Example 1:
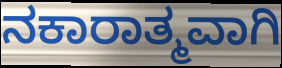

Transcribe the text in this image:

ನಕಾರಾತ್ಮವಾಗಿ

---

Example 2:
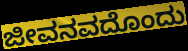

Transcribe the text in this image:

ಜೀವನವದೊಂದು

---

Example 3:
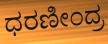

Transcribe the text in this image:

ಧರಣೀಂದ್ರ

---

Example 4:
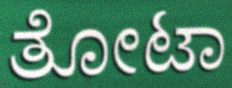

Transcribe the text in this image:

ತೋಟಾ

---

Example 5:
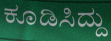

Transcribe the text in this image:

ಕೂಡಿಸಿದ್ದು